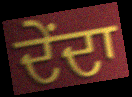
ਦੇਂਦਾ